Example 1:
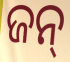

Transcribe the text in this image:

ଜନ୍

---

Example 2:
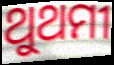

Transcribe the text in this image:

ଥୁଥମୀ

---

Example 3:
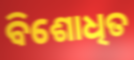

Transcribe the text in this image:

ବିଶୋଧିତ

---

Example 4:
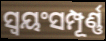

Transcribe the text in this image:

ସ୍ୱୟଂସମ୍ପୂର୍ଣ୍ଣ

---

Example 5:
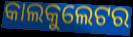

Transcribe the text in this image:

କାଲକୁଲେଟର